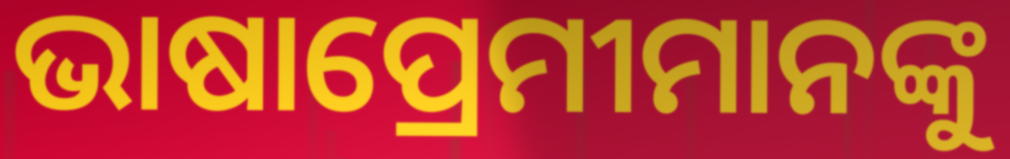
ଭାଷାପ୍ରେମୀମାନଙ୍କୁ